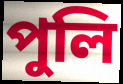
পুলি